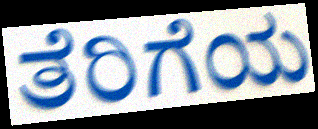
ತೆರಿಗೆಯ